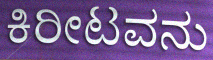
ಕಿರೀಟವನು